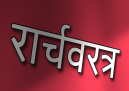
रार्चवरत्र